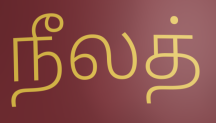
நீலத்